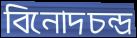
বিনোদচন্দ্র